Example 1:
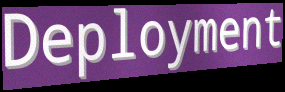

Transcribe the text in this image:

Deployment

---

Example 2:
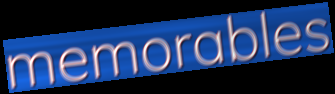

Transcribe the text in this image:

memorables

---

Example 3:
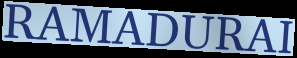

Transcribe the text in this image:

RAMADURAI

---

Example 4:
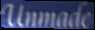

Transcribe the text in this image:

Unmade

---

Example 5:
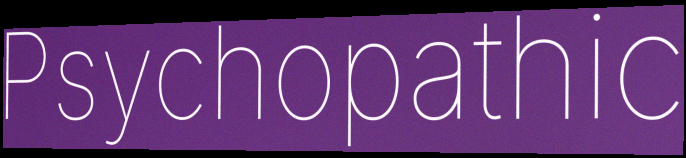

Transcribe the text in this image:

Psychopathic